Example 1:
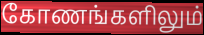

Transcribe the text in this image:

கோணங்களிலும்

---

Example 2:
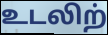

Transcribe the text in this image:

உடலிற்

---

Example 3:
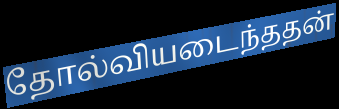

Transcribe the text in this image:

தோல்வியடைந்ததன்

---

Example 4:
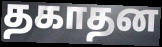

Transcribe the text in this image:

தகாதன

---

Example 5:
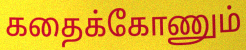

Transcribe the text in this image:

கதைக்கோணும்